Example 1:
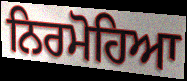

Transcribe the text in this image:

ਨਿਰਮੋਹਿਆ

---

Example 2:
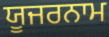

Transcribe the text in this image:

ਯੂਜਰਨਾਮ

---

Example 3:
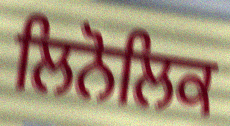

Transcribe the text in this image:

ਲਿਨੋਲਿਕ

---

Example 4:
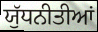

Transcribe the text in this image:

ਯੁੱਧਨੀਤੀਆਂ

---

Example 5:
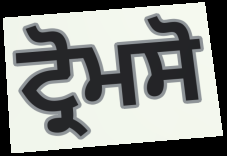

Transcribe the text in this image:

ਟ੍ਰੋਮਸੋ